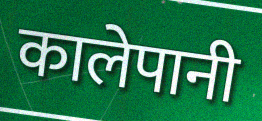
कालेपानी